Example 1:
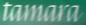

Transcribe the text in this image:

tamara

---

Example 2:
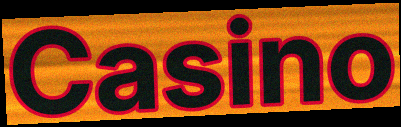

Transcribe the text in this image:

Casino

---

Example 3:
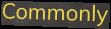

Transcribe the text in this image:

Commonly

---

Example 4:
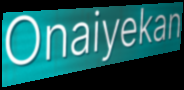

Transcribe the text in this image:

Onaiyekan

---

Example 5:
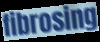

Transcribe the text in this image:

fibrosing